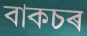
বাকচৰ